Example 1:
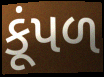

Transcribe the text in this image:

કૂંપળ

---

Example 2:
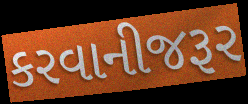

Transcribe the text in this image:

કરવાનીજરૂર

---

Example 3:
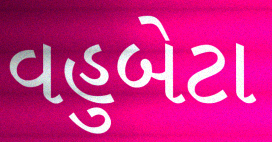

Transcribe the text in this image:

વહુબેટા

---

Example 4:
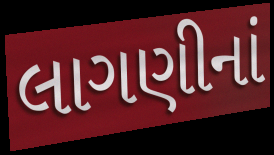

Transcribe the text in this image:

લાગણીનાં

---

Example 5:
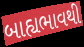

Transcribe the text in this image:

બાહ્યભાવથી